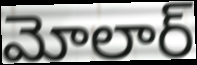
మోలార్